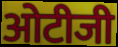
ओटीजी